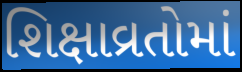
શિક્ષાવ્રતોમાં